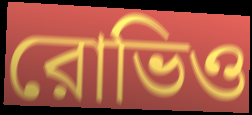
রোভিও